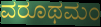
ವರೂಥಮಂ